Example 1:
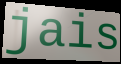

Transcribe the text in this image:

jais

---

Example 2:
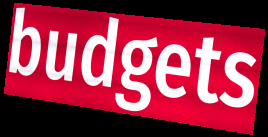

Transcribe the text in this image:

budgets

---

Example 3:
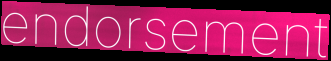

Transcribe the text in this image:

endorsement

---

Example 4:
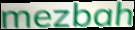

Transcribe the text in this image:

mezbah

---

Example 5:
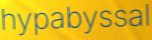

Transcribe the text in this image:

hypabyssal